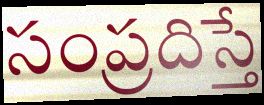
సంప్రదిస్తే